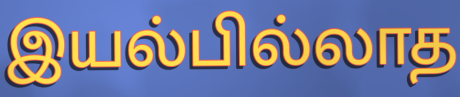
இயல்பில்லாத